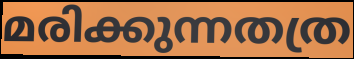
മരിക്കുന്നതത്ര